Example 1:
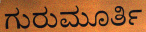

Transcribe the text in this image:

ಗುರುಮೂರ್ತಿ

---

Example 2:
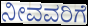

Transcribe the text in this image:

ನೀವವರಿಗೆ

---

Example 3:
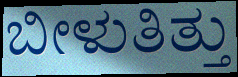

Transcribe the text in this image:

ಬೀಳುತಿತ್ತು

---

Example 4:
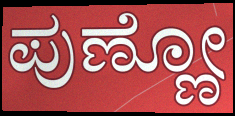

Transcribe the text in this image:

ಪುಣ್ಣೋ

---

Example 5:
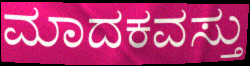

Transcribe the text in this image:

ಮಾದಕವಸ್ತು